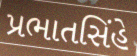
પ્રભાતસિંહે